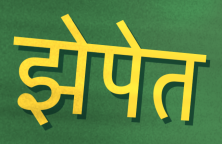
झेपेत